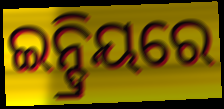
ଇନ୍ଦ୍ରିୟରେ